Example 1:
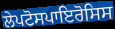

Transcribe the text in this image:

ਲੇਪਟੋਸਪਾਇਰੋਸਿਸ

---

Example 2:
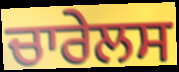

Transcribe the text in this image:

ਚਾਰੇਲਸ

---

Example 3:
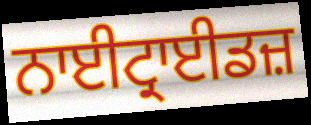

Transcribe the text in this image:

ਨਾਈਟ੍ਰਾਈਡਜ਼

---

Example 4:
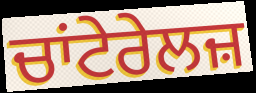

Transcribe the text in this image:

ਚਾਂਟੇਰੇਲਜ਼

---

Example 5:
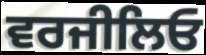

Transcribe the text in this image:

ਵਰਜੀਲਿਓ